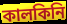
কালকিনি